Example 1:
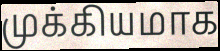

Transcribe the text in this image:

முக்கியமாக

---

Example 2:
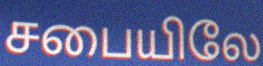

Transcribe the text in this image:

சபையிலே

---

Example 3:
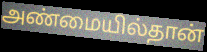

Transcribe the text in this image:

அண்மையில்தான்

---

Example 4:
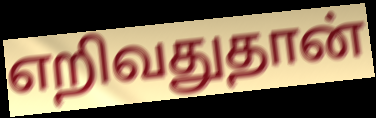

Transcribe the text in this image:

எறிவதுதான்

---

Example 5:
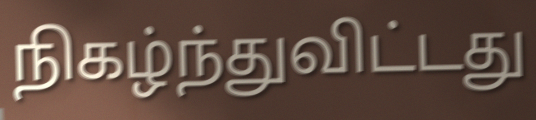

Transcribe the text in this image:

நிகழ்ந்துவிட்டது